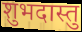
शुभदास्तु